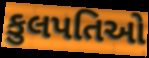
કુલપતિઓ